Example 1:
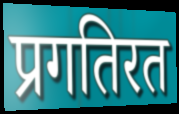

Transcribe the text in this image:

प्रगतिरत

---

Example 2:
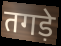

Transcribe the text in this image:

तगड़े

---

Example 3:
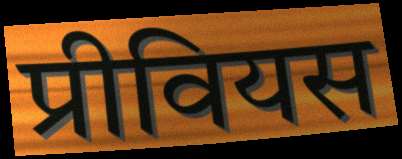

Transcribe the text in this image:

प्रीवियस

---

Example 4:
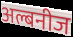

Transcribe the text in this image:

अल्बनीज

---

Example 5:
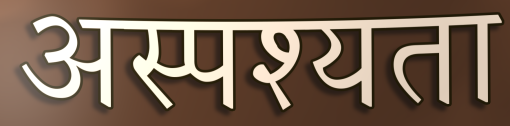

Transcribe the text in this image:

अस्पश्यता